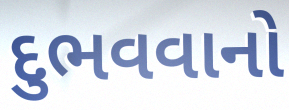
દુભવવાનો